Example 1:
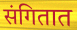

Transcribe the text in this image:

संगितात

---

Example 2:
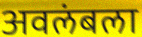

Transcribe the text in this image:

अवलंबला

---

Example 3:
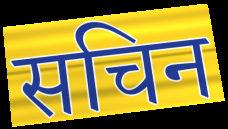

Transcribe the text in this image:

सचिन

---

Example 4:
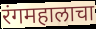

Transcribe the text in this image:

रंगमहालाचा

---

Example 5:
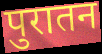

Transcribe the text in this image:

पुरातन